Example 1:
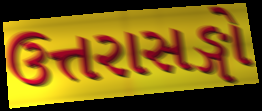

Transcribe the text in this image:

ઉત્તરાસઙ્ગો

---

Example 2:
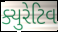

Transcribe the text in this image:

ક્યુરેટિવ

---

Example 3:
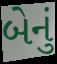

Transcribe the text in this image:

બેનું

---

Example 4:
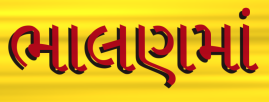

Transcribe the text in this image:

ભાલણમાં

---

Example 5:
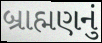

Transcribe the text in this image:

બ્રાહ્મણનું